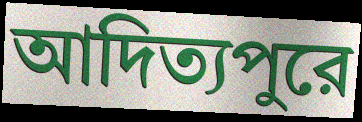
আদিত্যপুরে